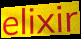
elixir